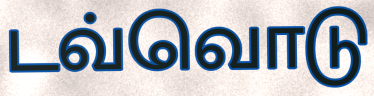
டவ்வொடு